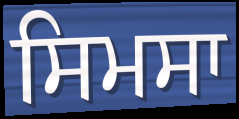
ਸਿਮਸਾ